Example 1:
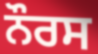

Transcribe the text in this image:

ਨੌਰਸ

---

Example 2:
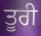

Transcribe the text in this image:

ਤੂਰੀ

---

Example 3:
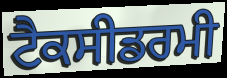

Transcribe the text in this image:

ਟੈਕਸੀਡਰਮੀ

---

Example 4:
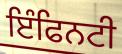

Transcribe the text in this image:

ਇੰਫਿਨਟੀ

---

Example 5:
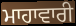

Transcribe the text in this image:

ਮਾਹਾਵਾਰੀ